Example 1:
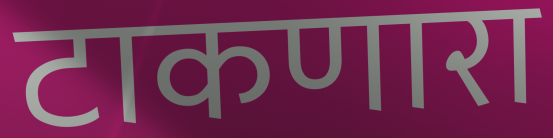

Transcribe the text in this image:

टाकणारा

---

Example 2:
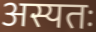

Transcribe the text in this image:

अस्यतः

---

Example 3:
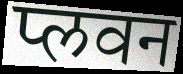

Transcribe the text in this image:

प्लवन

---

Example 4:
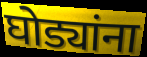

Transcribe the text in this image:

घोड्यांना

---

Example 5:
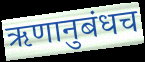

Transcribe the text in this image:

ऋणानुबंधच